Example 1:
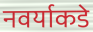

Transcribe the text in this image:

नवर्याकडे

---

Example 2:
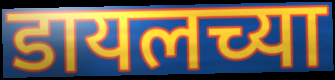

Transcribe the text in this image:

डायलच्या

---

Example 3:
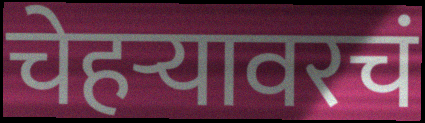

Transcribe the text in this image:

चेहर्‍यावरचं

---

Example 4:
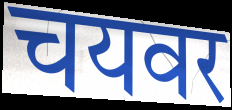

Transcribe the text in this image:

चयवर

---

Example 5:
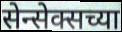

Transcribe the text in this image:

सेन्सेक्सच्या